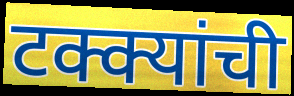
टक्क्यांची